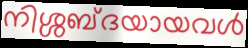
നിശ്ശബ്ദയായവൾ